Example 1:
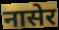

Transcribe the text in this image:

नासेर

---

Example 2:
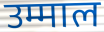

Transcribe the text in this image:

उम्माल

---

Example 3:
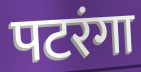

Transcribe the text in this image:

पटरंगा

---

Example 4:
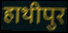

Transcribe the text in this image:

हाथीपुर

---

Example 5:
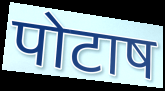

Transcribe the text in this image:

पोटाष